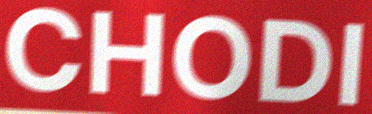
CHODI